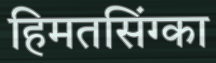
हिमतसिंग्का